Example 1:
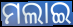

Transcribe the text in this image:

ମଲାଇ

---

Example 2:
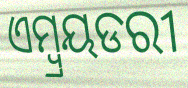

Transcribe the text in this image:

ଏମ୍ବ୍ରୟଡରୀ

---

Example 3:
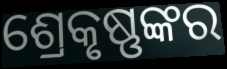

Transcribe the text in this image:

ଶ୍ରେକୃଷ୍ଣଙ୍କର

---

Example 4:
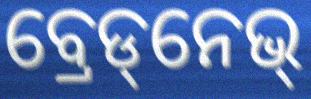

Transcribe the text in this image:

ବ୍ରେଡ୍‌ନେଭ୍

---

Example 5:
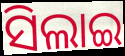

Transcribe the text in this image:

ସିଲାଇ